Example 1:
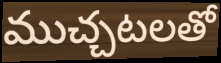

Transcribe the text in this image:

ముచ్చటలతో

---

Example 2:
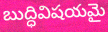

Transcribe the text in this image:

బుద్ధివిషయమై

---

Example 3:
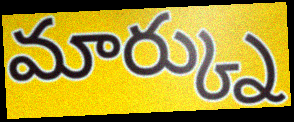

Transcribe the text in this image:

మార్క్ను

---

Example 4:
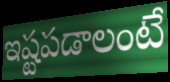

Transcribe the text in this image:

ఇష్టపడాలంటే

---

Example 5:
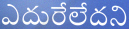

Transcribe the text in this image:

ఎదురేలేదని